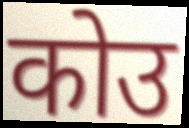
कोउ